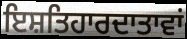
ਇਸ਼ਤਿਹਾਰਦਾਤਾਵਾਂ